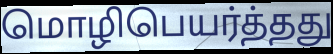
மொழிபெயர்த்தது